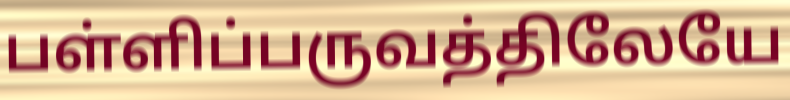
பள்ளிப்பருவத்திலேயே